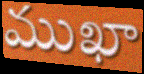
ముఖా